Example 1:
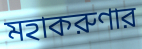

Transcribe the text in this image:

মহাকরুণার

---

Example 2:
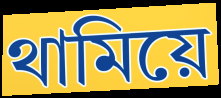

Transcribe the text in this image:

থামিয়ে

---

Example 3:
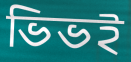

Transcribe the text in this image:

ভিভই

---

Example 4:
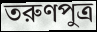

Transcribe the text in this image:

তরুণপুত্র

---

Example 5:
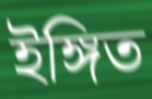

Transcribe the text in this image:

ইঙ্গিত